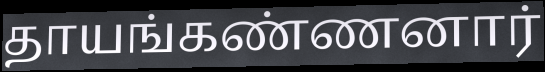
தாயங்கண்ணனார்